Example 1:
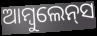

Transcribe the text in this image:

ଆମ୍ବୁଲେନ୍‍ସ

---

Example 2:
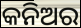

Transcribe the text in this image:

କନିଅର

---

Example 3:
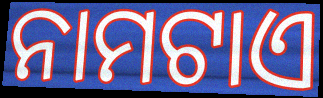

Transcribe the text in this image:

ନାମଟାଏ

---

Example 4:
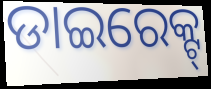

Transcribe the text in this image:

ଡାଇରେକ୍ଟ୍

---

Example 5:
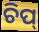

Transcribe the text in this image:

ଚିପ୍